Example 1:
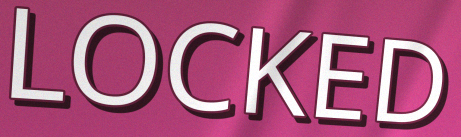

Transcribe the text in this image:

LOCKED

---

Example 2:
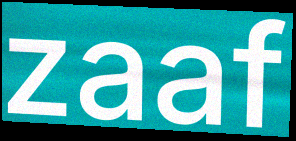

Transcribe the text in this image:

zaaf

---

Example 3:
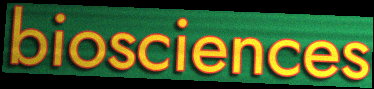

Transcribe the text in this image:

biosciences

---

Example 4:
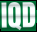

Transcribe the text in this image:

IQD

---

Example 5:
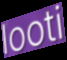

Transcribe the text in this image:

looti